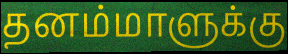
தனம்மாளுக்கு